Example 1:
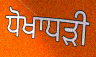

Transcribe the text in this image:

ਧੋਖਾਧਡ਼ੀ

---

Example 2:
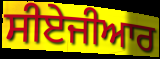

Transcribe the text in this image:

ਸੀਏਜੀਆਰ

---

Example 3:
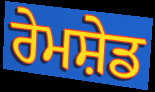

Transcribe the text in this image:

ਰੇਮਸ਼ੇਡ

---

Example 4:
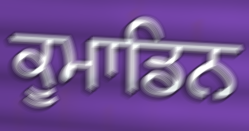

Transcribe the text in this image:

ਕੂਮਾਡਿਨ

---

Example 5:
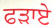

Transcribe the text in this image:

ਫੜਾਏ